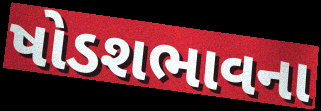
ષોડશભાવના